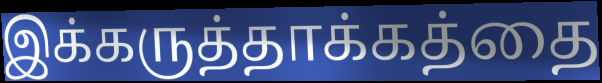
இக்கருத்தாக்கத்தை